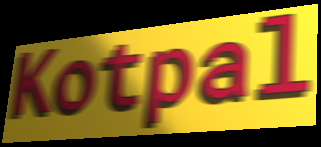
Kotpal